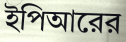
ইপিআরের